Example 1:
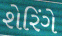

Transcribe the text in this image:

શેરિંગે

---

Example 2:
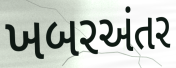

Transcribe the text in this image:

ખબરઅંતર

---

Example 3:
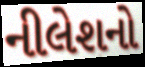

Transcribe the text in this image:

નીલેશનો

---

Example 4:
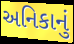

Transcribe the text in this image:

અનિકાનું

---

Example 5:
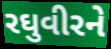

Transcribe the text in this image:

રઘુવીરને